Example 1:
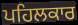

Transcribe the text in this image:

ਪਹਿਲਕਾਰ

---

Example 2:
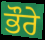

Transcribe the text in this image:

ਭੌਰੇ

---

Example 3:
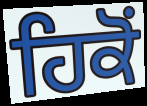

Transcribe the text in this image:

ਹਿਕੋਂ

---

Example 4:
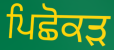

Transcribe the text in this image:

ਪਿਛੋਕੜ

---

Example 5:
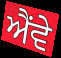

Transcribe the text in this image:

ਐਂਵੇ